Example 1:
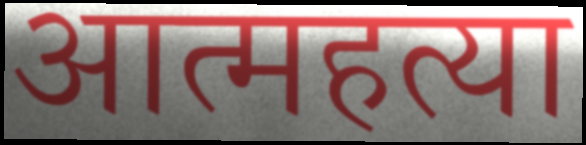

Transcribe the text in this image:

आत्महत्या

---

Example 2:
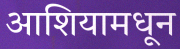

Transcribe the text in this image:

आशियामधून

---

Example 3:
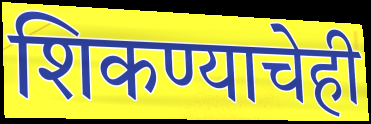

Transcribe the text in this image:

शिकण्याचेही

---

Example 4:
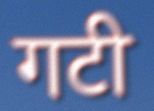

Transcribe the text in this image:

गटी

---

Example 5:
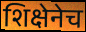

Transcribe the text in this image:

शिक्षेनेच